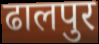
ढालपुर